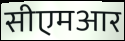
सीएमआर